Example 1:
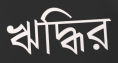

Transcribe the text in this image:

ঋদ্ধির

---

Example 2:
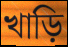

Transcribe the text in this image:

খাড়ি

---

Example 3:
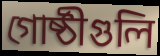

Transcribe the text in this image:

গোষ্ঠীগুলি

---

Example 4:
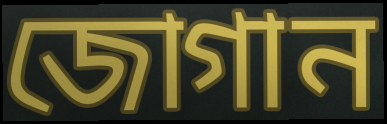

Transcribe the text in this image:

জোগান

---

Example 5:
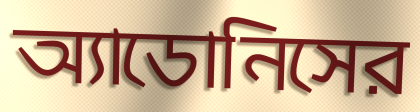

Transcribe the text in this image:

অ্যাডোনিসের